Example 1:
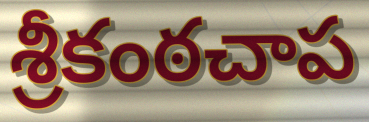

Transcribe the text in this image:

శ్రీకంఠచాప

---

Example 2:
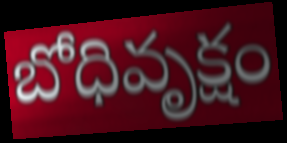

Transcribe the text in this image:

బోధివృక్షం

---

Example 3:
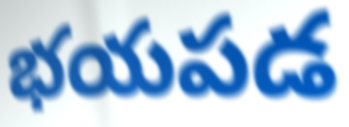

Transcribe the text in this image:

భయపడ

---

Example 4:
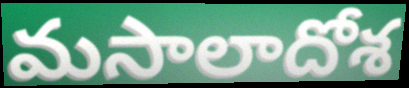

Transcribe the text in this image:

మసాలాదోశ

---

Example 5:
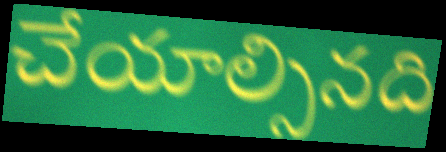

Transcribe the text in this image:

చేయాల్సినది